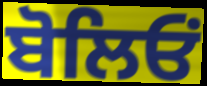
ਬੋਲਿਓਂ